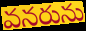
వనరును